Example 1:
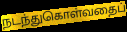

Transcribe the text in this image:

நடந்துகொள்வதைப்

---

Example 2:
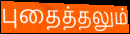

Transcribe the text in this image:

புதைத்தலும்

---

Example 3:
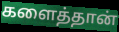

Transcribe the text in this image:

களைத்தான்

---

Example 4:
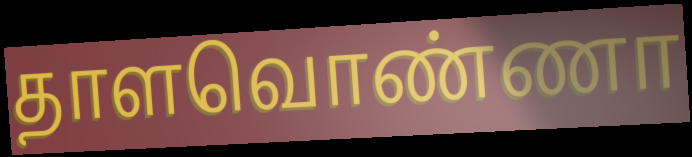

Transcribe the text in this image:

தாளவொண்ணா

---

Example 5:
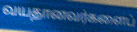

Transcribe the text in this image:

வயதானவர்களைப்